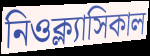
নিওক্ল্যাসিকাল